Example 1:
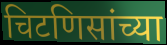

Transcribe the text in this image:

चिटणिसांच्या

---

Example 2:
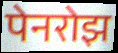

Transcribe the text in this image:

पेनरोझ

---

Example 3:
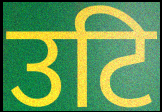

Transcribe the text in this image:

उटि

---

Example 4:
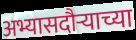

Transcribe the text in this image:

अभ्यासदौऱ्याच्या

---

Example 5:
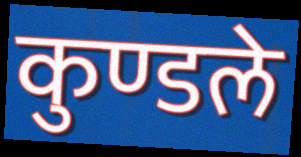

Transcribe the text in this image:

कुण्डले